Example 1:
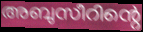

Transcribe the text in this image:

അബുസീറിന്റെ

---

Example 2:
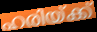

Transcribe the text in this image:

ഹരിയ്‌ക്ക്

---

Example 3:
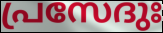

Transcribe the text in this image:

പ്രസേദുഃ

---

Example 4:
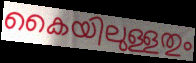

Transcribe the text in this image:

കൈയിലുള്ളതും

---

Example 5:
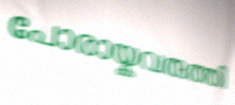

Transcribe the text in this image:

പോരായ്കവരുത്തി